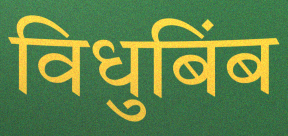
विधुबिंब